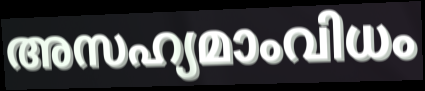
അസഹ്യമാംവിധം